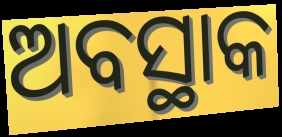
ଅବସ୍ଥାକ